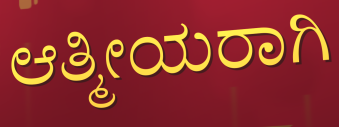
ಆತ್ಮೀಯರಾಗಿ